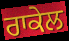
ਰਾਕੇਲ